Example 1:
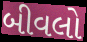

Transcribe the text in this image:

બીવલો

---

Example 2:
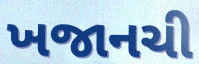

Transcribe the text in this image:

ખજાનચી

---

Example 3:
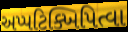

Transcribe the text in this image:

અપ્પટિક્ખિપિત્વા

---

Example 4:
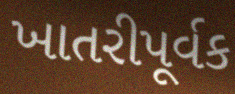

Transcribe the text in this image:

ખાતરીપૂર્વક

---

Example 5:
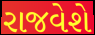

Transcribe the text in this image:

રાજવેશે